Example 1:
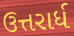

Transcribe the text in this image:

ઉત્તરાર્ધ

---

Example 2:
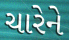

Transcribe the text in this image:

ચારેને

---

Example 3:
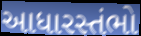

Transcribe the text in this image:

આધારસ્તંભો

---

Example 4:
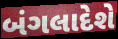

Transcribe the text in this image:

બંગલાદેશે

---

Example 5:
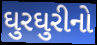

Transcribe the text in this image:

ઘુરઘુરીનો